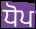
ਧੋਪ